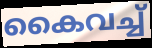
കൈവച്ച്